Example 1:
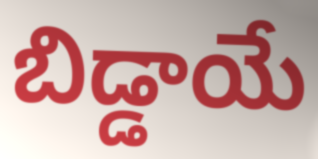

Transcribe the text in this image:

బిడ్డాయే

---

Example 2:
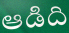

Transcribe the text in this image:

ఆడిది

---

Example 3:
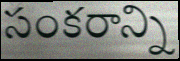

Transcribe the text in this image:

సంకరాన్ని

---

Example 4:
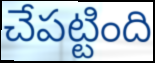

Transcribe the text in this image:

చేపట్టింది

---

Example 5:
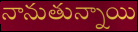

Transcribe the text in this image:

నానుతున్నాయి